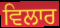
ਵਿਲਾਰ